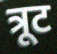
त्रूट